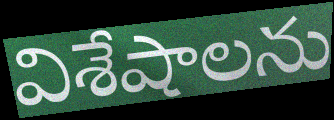
విశేషాలను